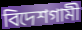
বিদেশগামী